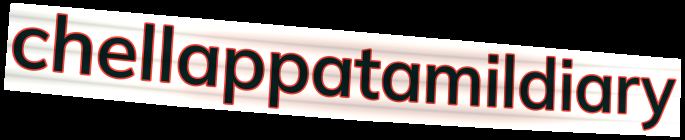
chellappatamildiary